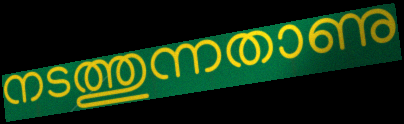
നടത്തുന്നതാണു